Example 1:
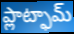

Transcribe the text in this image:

ప్లాట్ఫామ్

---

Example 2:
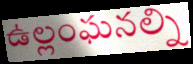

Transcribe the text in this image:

ఉల్లంఘనల్ని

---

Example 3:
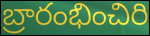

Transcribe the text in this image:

బ్రారంభించిరి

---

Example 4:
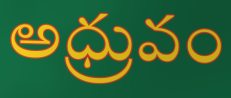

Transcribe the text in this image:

అధ్రువం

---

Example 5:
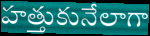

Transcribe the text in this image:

హత్తుకునేలాగా